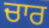
ਚਾਰ